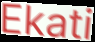
Ekati